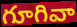
గూగివా